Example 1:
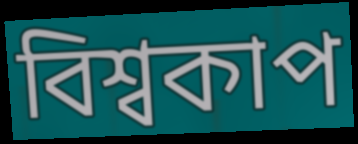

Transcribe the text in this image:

বিশ্বকাপ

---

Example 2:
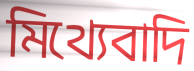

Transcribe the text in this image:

মিথ্যেবাদি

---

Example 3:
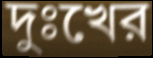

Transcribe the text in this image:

দুঃখের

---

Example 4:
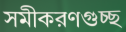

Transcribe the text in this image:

সমীকরণগুচ্ছ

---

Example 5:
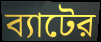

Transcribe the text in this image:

ব্যাটের